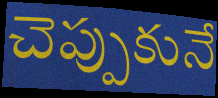
చెప్పుకునే